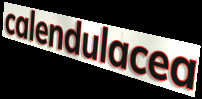
calendulacea